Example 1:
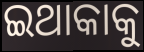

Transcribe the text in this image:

ଇଥାକାକୁ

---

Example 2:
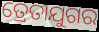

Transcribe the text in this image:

ତ୍ରେତାଯୁଗର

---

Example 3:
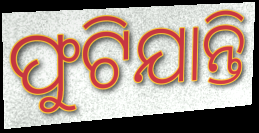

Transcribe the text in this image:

ଫୁଟିଯାନ୍ତି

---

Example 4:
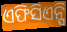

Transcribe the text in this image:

ଏଫିସିଏନ୍ସି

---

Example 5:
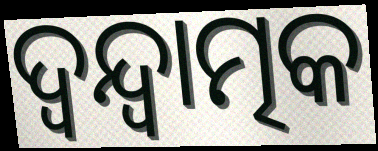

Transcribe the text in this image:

ଦ୍ଵନ୍ଦ୍ଵାତ୍ମକ